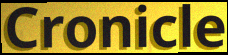
Cronicle